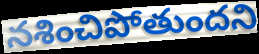
నశించిపోతుందని